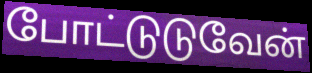
போட்டுடுவேன்